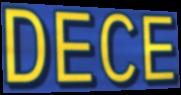
DECE